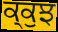
ਕ੍ਕੁਝ